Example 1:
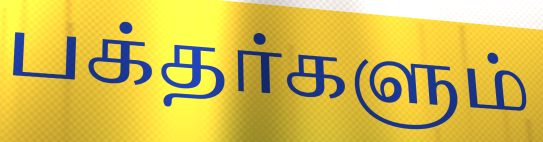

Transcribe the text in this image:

பக்தர்களும்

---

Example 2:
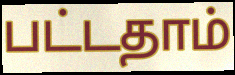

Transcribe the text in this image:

பட்டதாம்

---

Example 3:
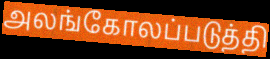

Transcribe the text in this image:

அலங்கோலப்படுத்தி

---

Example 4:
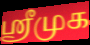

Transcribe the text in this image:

ஸ்ரீமுக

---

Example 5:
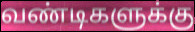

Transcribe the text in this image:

வண்டிகளுக்கு